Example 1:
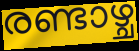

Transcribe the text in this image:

രണ്ടാഴ്ച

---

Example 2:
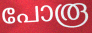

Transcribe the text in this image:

പോരൂ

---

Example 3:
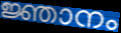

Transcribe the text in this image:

ജ്ഞാനം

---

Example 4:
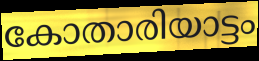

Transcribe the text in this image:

കോതാരിയാട്ടം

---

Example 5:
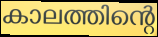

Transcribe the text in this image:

കാലത്തിന്റെ